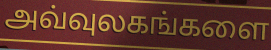
அவ்வுலகங்களை